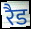
रैड